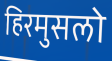
हिरमुसलो